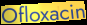
Ofloxacin